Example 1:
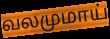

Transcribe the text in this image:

வலமுமாய்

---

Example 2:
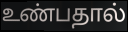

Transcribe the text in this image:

உண்பதால்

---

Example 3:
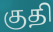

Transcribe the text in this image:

குதி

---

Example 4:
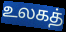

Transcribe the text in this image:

உலகத்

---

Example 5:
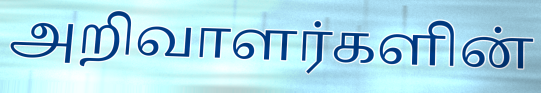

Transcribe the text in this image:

அறிவாளர்களின்